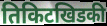
तिकिटखिडकी